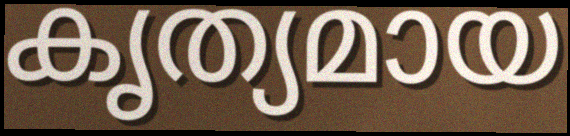
കൃത്യമായ